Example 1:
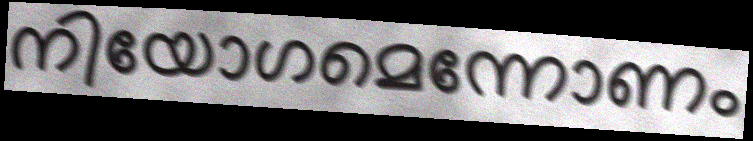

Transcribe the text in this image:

നിയോഗമെന്നോണം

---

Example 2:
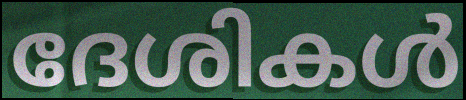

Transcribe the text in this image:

ദേശികൾ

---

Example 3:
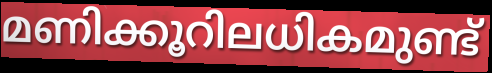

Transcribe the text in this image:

മണിക്കൂറിലധികമുണ്ട്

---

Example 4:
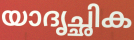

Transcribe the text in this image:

യാദൃച്ഛിക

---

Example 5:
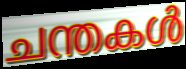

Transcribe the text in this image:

ചന്തകൾ